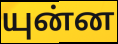
யுன்ன